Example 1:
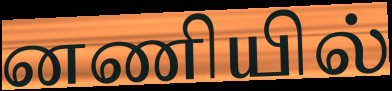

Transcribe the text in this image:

னணியில்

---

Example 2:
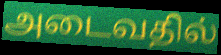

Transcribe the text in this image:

அடைவதில்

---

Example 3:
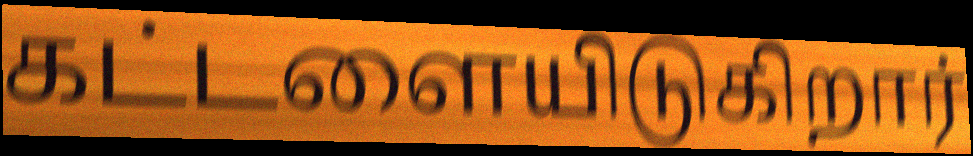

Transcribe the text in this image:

கட்டளையிடுகிறார்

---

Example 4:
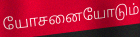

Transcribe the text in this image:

யோசனையோடும்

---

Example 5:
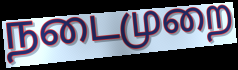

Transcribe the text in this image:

நடைமுறை